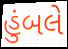
હુંબલે